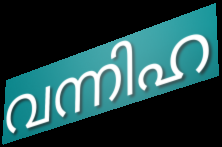
വന്നിഹ